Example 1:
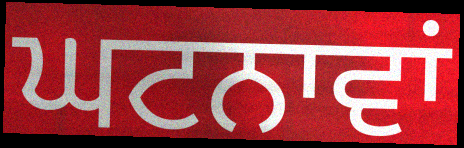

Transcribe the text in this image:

ਘਟਨਾਵਾਂ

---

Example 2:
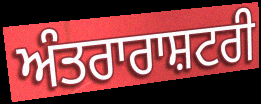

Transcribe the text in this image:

ਅੰਤਰਾਰਾਸ਼ਟਰੀ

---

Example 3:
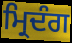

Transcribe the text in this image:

ਮ੍ਰਿਦੰਗ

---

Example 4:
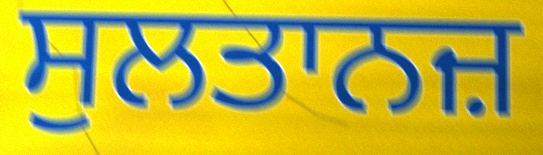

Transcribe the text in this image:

ਸੁਲਤਾਨਜ਼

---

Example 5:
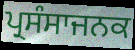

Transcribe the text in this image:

ਪ੍ਰਸੰਸਾਜਨਕ